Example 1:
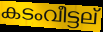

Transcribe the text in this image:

കടംവീട്ടല്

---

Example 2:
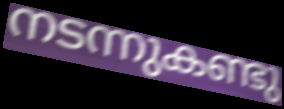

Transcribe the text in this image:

നടന്നുകണ്ടു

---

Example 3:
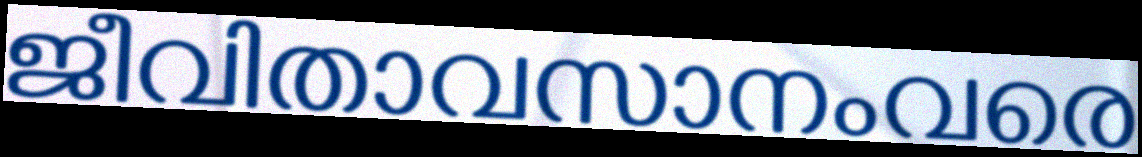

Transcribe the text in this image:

ജീവിതാവസാനംവരെ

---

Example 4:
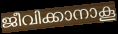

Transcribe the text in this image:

ജീവിക്കാനാകൂ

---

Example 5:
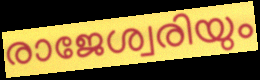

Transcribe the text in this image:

രാജേശ്വരിയും